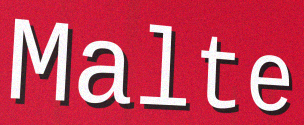
Malte